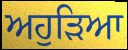
ਅਹੁੜਿਆ